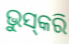
ଭୁସ୍‌କରି